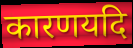
कारणयदि